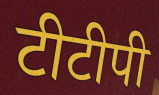
टीटीपी